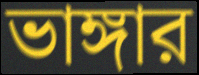
ভাঙ্গার